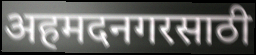
अहमदनगरसाठी